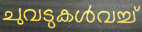
ചുവടുകൾവച്ച്